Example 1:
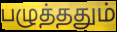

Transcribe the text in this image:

பழுத்ததும்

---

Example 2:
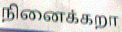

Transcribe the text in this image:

நினைக்கறா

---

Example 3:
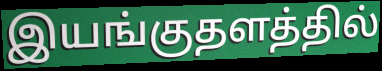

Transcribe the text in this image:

இயங்குதளத்தில்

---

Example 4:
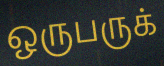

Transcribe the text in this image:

ஒருபருக்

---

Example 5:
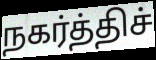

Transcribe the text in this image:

நகர்த்திச்